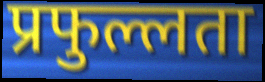
प्रफुल्लता